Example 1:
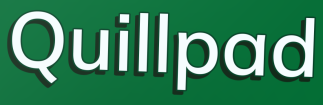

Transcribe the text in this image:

Quillpad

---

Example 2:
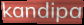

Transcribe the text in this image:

kandipa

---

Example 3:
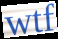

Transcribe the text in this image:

wtf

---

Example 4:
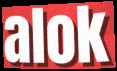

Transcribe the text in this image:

alok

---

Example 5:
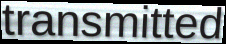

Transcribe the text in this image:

transmitted